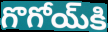
గొగోయ్‌కి